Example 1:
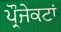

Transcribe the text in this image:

ਪ੍ਰੌਜੇਕਟਾਂ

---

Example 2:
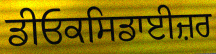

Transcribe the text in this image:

ਡੀਓਕਸਿਡਾਈਜ਼ਰ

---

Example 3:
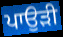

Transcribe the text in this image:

ਪਾਉੜੀ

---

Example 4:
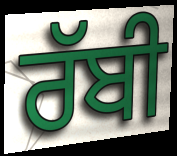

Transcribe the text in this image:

ਰੱਬੀ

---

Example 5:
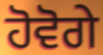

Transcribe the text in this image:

ਹੋਵੋਗੇ